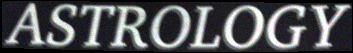
ASTROLOGY